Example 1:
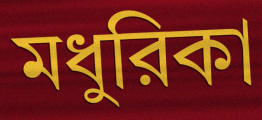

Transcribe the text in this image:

মধুরিকা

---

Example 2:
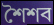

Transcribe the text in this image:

শৈশব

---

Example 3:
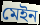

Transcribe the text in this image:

মেইন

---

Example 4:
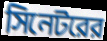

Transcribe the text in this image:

সিনেটরের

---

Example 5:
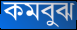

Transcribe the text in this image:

কমবুঝ